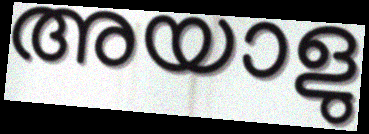
അയാളു